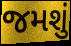
જમશું